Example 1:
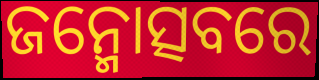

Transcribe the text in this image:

ଜନ୍ମୋତ୍ସବରେ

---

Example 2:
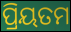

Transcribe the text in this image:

ପ୍ରିୟତମ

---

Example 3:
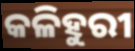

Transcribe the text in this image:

କଳିହୁରୀ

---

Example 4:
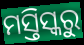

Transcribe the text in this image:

ମସ୍ତିସ୍କରୁ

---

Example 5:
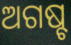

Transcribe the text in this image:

ଅଗଷ୍ଚ